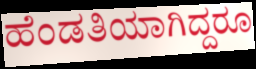
ಹೆಂಡತಿಯಾಗಿದ್ದರೂ